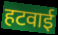
हटवाई